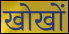
खोखों